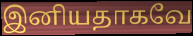
இனியதாகவே